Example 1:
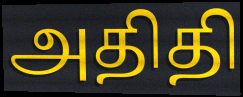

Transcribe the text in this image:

அதிதி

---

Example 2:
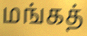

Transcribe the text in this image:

மங்கத்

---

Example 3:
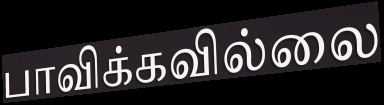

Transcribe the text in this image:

பாவிக்கவில்லை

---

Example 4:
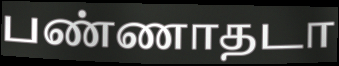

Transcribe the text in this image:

பண்ணாதடா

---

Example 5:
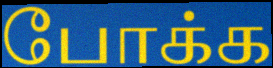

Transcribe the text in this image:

போக்க